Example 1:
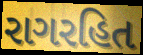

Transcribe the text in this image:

રાગરહિત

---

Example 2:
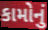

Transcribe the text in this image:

કામોનું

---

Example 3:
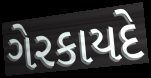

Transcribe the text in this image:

ગેરકાયદે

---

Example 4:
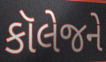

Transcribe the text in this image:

કૉલેજને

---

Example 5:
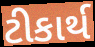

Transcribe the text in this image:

ટીકાર્થ